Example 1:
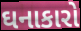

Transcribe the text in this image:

ઘનાકારો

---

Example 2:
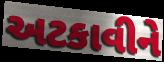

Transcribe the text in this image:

અટકાવીને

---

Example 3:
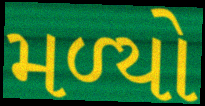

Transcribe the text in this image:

મળ્‍યો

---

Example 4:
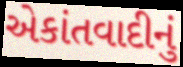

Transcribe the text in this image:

એકાંતવાદીનું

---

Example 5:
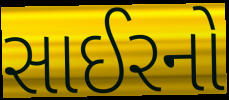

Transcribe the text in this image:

સાઈરનો